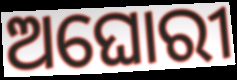
ଅଘୋରୀ